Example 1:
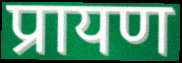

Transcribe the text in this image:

प्रायण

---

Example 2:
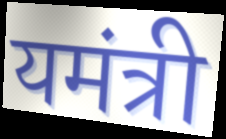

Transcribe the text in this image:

यमंत्री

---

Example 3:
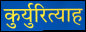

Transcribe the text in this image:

कुर्युरित्याह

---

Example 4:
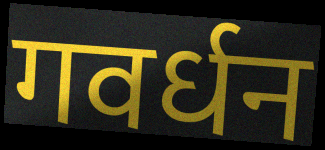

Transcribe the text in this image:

गवर्धन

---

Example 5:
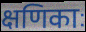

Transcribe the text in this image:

क्षणिकाः